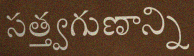
సత్త్వగుణాన్ని